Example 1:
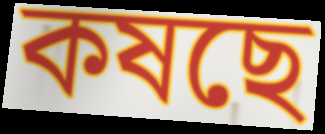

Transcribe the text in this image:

কষছে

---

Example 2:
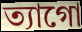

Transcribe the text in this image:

ত্যাগো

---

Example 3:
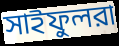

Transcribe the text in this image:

সাইফুলরা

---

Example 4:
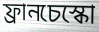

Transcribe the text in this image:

ফ্রানচেস্কো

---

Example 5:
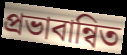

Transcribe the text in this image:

প্রভাবান্বিত